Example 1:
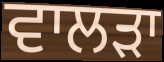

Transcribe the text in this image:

ਵਾਲੜਾ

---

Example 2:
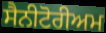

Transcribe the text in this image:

ਸੈਨੀਟੋਰੀਅਮ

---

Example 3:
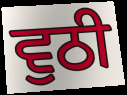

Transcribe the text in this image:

ਵੁਠੀ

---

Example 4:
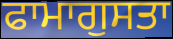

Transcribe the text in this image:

ਫਾਮਾਗੁਸਤਾ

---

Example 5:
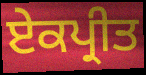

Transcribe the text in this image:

ਏਕਪ੍ਰੀਤ